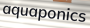
aquaponics